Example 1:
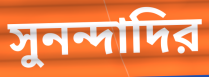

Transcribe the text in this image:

সুনন্দাদির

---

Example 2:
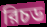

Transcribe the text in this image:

রিচড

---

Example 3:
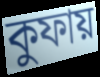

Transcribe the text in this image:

কুফায়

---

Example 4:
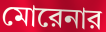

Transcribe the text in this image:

মোরেনার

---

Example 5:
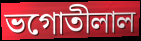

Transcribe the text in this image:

ভগোতীলাল